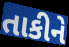
તાકીને